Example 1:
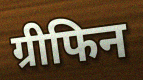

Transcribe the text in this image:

ग्रीफिन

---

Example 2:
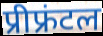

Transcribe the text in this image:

प्रीफ्रंटल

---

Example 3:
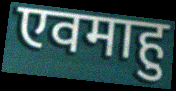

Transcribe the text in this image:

एवमाहु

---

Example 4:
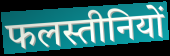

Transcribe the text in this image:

फलस्तीनियों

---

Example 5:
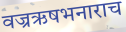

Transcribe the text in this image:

वज्रऋषभनाराच